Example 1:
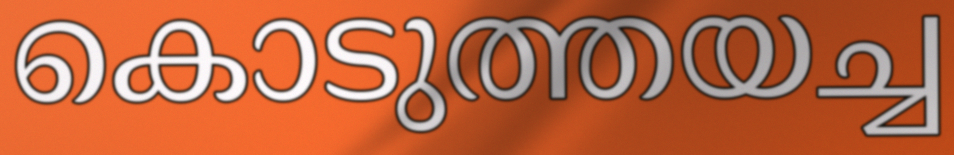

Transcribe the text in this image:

കൊടുത്തയച്ച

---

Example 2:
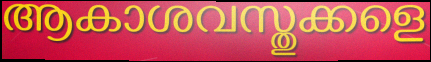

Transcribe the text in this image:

ആകാശവസ്തുക്കളെ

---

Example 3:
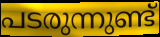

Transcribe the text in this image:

പടരുന്നുണ്ട്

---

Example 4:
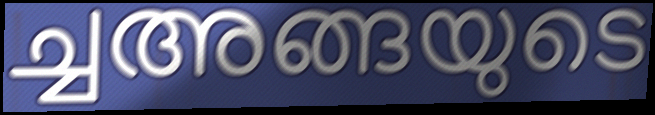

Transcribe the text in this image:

ച്ചഅങ്ങയുടെ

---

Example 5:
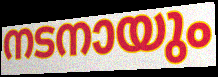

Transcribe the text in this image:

നടനായും